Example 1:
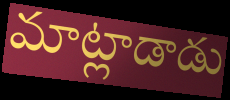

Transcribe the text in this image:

మాట్లాడాడు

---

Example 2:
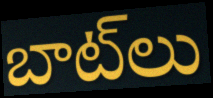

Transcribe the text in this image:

బాట్‌లు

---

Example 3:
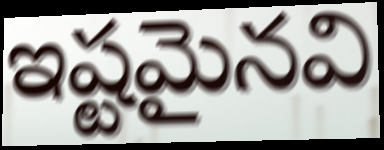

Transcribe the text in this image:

ఇష్టమైనవి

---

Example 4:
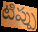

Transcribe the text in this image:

టిప్పు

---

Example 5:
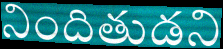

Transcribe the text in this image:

నిందితుడని